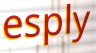
esply